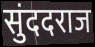
सुंददराज